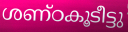
ശണ്ഠകൂടീട്ടു